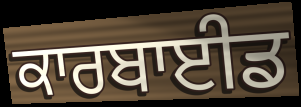
ਕਾਰਬਾਈਡ